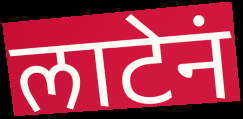
लाटेनं